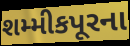
શમ્મીકપૂરના